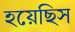
হয়েছিস